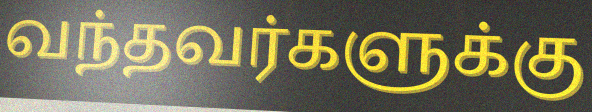
வந்தவர்களுக்கு